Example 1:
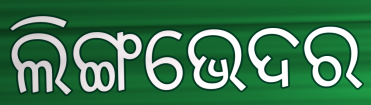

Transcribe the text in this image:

ଲିଙ୍ଗଭେଦର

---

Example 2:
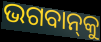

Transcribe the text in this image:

ଭଗବାନ୍‌କୁ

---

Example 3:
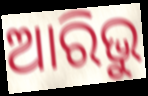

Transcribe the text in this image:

ଆରିଭୁ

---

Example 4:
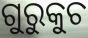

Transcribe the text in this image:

ଗୁରୁକୁଚ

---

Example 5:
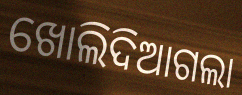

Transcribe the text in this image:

ଖୋଲିଦିଆଗଲା